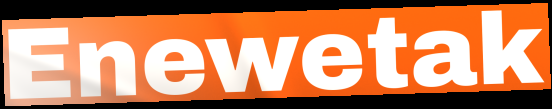
Enewetak